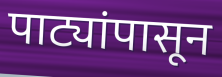
पाट्यांपासून